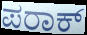
ಪರಾಕ್